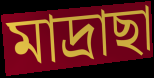
মাদ্ৰাছা